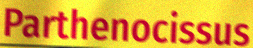
Parthenocissus